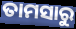
ତାମସାରୁ